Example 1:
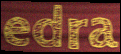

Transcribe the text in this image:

edra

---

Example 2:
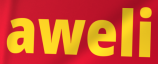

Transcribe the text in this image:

aweli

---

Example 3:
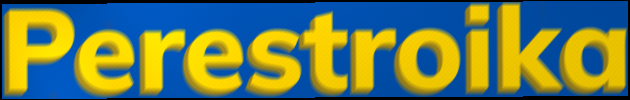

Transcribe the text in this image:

Perestroika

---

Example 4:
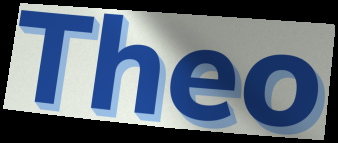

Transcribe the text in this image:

Theo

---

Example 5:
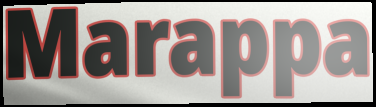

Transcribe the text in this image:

Marappa